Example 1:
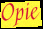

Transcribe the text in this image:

Opie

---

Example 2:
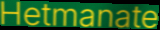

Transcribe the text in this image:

Hetmanate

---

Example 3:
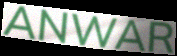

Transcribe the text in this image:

ANWAR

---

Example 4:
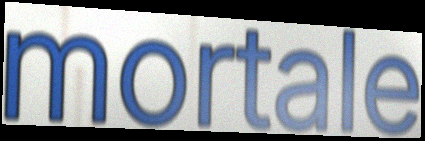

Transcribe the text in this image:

mortale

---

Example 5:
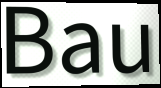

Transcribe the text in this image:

Bau